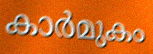
കാർമുകം